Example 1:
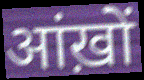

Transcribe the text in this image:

आंख़ों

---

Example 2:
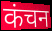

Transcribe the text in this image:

कंचन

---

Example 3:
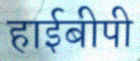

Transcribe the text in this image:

हाईबीपी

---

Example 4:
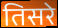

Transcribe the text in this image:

तिसरे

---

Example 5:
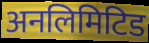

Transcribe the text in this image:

अनलिमिटिड